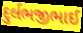
દુર્લભજીભાઈ